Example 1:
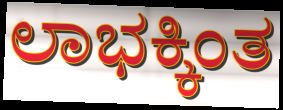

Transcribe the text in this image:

ಲಾಭಕ್ಕಿಂತ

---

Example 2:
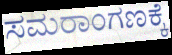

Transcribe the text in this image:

ಸಮರಾಂಗಣಕ್ಕೆ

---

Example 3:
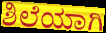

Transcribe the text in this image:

ಶಿಲೆಯಾಗಿ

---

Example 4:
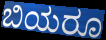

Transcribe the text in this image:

ಬಿಯರೂ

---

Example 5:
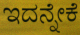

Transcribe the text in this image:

ಇದನ್ನೇಕೆ